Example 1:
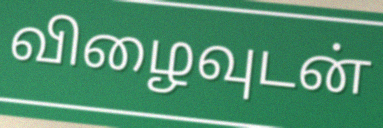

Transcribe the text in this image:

விழைவுடன்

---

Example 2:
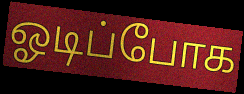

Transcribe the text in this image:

ஓடிப்போக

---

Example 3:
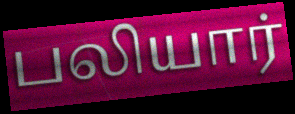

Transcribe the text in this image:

பலியார்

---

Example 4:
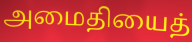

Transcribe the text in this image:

அமைதியைத்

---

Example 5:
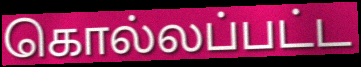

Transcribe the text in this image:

கொல்லப்பட்ட